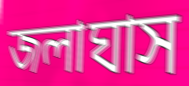
জলাঘাস